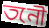
তনৌ